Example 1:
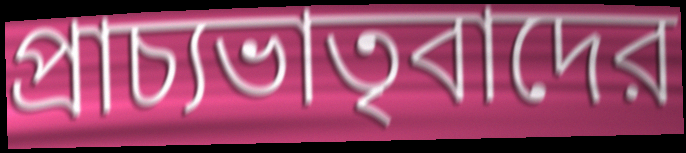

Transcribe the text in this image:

প্রাচ্যভাতৃবাদের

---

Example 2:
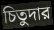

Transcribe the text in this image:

চিতুদার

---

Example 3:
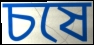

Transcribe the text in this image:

চষে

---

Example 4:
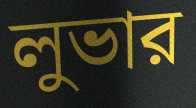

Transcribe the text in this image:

লুভার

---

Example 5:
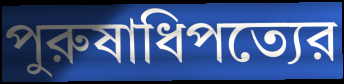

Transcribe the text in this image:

পুরুষাধিপত্যের